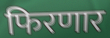
फिरणार